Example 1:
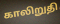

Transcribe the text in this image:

காலிறுதி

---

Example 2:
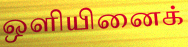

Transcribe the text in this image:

ஒளியினைக்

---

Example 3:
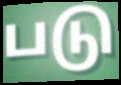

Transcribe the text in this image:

படு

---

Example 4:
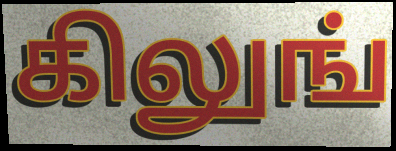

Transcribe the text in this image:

கிலுங்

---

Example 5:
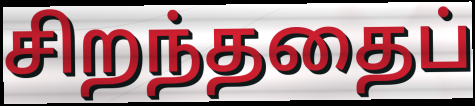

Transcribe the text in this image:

சிறந்ததைப்